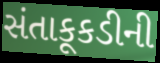
સંતાકૂકડીની